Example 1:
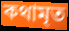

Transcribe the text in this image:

কথামৃত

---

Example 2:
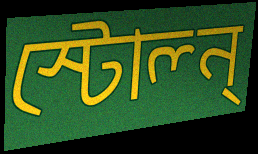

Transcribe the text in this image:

স্টোল্ন্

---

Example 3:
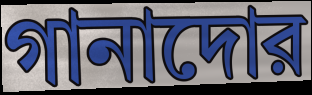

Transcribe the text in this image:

গানাদোর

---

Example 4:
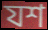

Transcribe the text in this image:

যশ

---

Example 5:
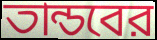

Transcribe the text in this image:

তান্ডবের